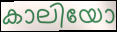
കാലിയോ